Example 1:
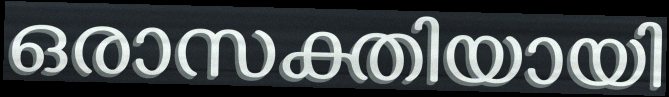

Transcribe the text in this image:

ഒരാസക്തിയായി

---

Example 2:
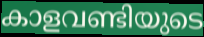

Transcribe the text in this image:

കാളവണ്ടിയുടെ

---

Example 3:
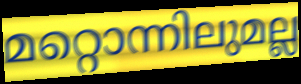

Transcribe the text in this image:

മറ്റൊന്നിലുമല്ല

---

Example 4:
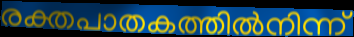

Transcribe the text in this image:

രക്തപാതകത്തിൽനിന്ന്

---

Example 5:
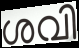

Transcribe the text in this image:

ശവി